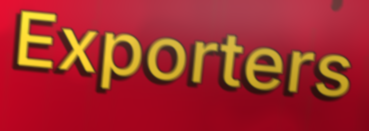
Exporters